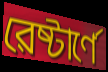
ৱেষ্টাৰ্ণে